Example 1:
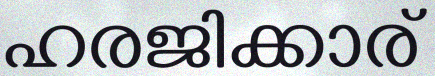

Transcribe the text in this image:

ഹരജിക്കാര്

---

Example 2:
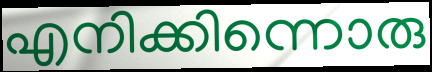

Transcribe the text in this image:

എനിക്കിന്നൊരു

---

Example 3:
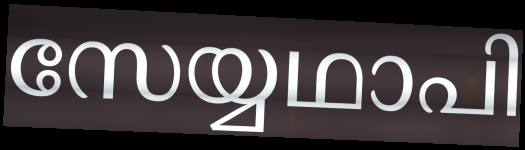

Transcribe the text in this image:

സേയ്യഥാപി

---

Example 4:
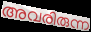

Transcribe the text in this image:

അവരിരുന്ന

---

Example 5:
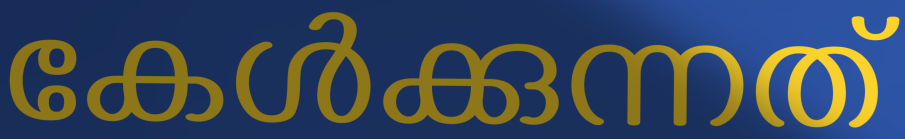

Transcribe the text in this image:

കേൾക്കുന്നത്